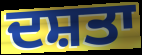
ਦਸ਼ਤਾ